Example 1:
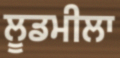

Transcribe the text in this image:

ਲੂਡਮੀਲਾ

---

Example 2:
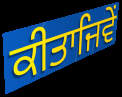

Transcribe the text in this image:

ਕੀਤਾਜਿਵੇਂ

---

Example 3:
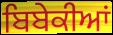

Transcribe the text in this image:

ਬਿਬੇਕੀਆਂ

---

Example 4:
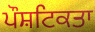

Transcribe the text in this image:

ਪੌਸ਼ਟਿਕਤਾ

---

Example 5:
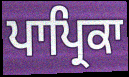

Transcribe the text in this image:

ਪਾਪ੍ਰਿਕਾ